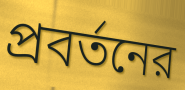
প্রবর্তনের